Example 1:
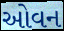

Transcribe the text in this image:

ઓવન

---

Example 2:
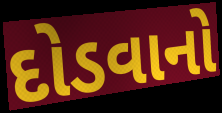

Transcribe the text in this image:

દોડવાનો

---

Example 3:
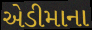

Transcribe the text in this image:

એડીમાના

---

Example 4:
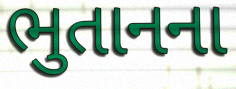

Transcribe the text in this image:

ભુતાનના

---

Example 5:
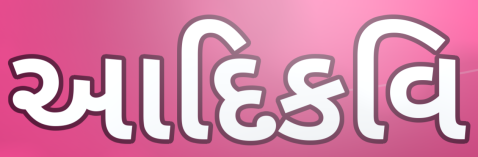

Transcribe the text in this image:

આદિકવિ